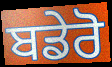
ਬਡੇਰੋ